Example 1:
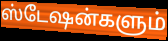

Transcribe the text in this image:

ஸ்டேஷன்களும்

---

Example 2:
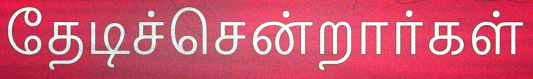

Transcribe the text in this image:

தேடிச்சென்றார்கள்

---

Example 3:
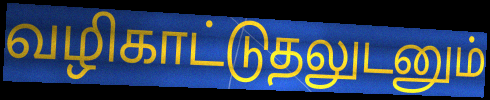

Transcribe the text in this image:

வழிகாட்டுதலுடனும்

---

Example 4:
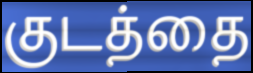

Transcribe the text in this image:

குடத்தை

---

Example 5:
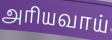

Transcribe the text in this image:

அரியவாய்